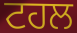
ਟਹਲ